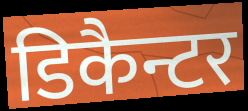
डिकैन्टर